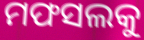
ମଫସଲକୁ